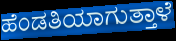
ಹೆಂಡತಿಯಾಗುತ್ತಾಳೆ